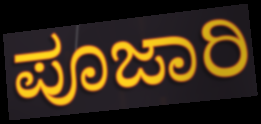
ಪೂಜಾರಿ